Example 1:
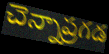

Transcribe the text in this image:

చెన్నాప్రగడ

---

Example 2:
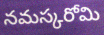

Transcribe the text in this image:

నమస్కరోమి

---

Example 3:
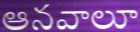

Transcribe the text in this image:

ఆనవాలూ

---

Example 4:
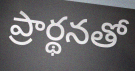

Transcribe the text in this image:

ప్రార్థనతో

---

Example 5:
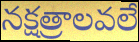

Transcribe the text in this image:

నక్షత్రాలవలే